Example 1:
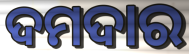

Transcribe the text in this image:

ଦମଦାର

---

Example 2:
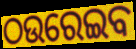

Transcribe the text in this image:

ଠଉରେଇବ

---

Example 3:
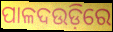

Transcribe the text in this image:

ପାଳଦଉଡ଼ିରେ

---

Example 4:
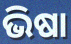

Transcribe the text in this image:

ଭିଷା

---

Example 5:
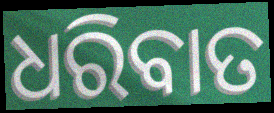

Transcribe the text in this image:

ଧରିବାତ